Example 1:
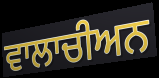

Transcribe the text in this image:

ਵਾਲਾਚੀਅਨ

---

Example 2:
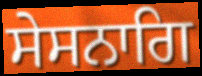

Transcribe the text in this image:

ਸੇਸਨਾਗਿ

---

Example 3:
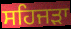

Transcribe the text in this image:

ਸਹਿਜੜਾ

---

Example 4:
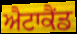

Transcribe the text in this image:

ਐਟਾਕੈਂਡ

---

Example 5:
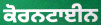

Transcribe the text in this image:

ਕੋਰਨਟਾਈਨ